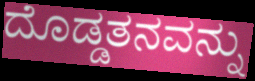
ದೊಡ್ಡತನವನ್ನು